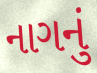
નાગનું